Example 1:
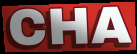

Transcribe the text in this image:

CHA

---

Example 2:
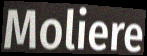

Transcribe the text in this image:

Moliere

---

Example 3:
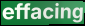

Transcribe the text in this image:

effacing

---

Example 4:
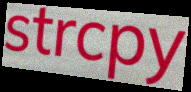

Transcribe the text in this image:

strcpy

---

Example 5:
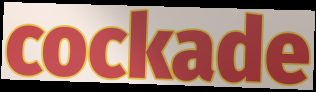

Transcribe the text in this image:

cockade